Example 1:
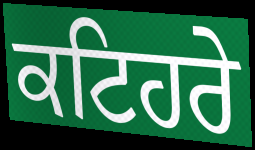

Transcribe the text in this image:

ਕਟਿਹਰੇ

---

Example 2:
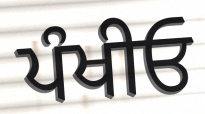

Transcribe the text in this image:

ਪੰਖੀਓ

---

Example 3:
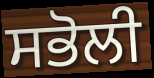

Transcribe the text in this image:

ਸਭੋਲੀ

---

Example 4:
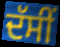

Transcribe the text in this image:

ਦੱਸੀਂ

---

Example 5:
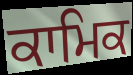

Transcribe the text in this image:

ਕਾਮਿਕ